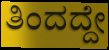
ತಿಂದದ್ದೇ